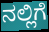
ನಲ್ಲಿಗೆ